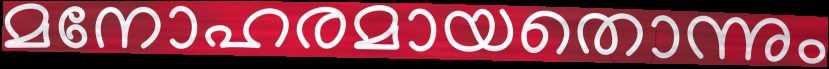
മനോഹരമായതൊന്നും